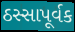
ઠસ્સાપૂર્વક